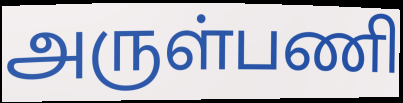
அருள்பணி